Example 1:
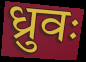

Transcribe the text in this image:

ध्रुवः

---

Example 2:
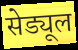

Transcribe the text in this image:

सेड्यूल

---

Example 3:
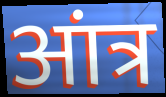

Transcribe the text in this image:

आंत्र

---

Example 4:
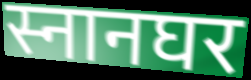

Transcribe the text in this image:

स्नानघर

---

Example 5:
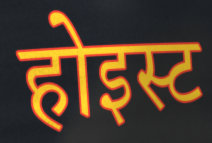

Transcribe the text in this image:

होइस्ट